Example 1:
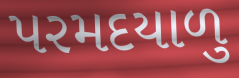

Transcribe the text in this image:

પરમદયાળુ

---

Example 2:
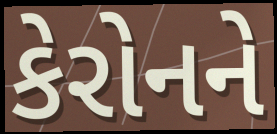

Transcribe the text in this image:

કેરોનને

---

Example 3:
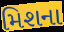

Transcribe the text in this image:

મિશના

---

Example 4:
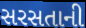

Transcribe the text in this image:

સરસતાની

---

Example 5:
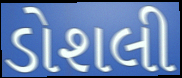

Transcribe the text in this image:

ડોશલી